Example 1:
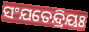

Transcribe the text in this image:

ସଂଯତେନ୍ଦ୍ରିୟଃ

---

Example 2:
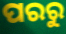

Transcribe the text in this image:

ପରରୁ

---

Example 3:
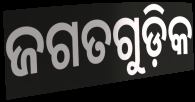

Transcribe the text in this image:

ଜଗତଗୁଡ଼ିକ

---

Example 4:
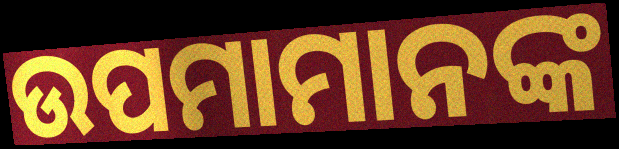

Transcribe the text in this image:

ଉପମାମାନଙ୍କ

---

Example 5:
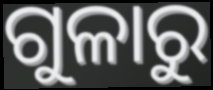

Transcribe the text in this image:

ଗୁଳାରୁ